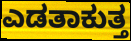
ಎಡತಾಕುತ್ತ